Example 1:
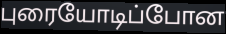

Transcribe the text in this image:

புரையோடிப்போன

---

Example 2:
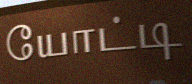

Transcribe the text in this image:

யோட்டி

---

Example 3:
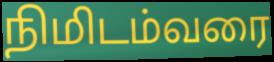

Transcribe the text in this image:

நிமிடம்வரை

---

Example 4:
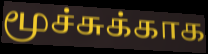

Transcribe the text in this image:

மூச்சுக்காக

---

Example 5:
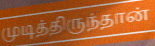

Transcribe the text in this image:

முடித்திருந்தான்